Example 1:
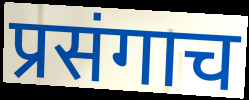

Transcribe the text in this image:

प्रसंगाच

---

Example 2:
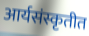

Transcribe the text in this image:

आर्यसंस्कृतीत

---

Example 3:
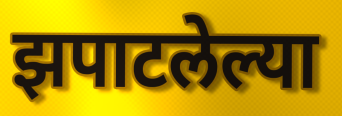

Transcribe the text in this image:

झपाटलेल्या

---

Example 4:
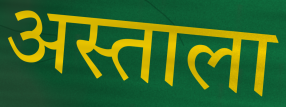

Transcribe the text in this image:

अस्ताला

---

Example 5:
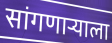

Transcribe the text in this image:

सांगणार्‍याला